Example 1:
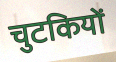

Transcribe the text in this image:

चुटकियों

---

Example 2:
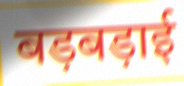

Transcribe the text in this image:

बड़बड़ाई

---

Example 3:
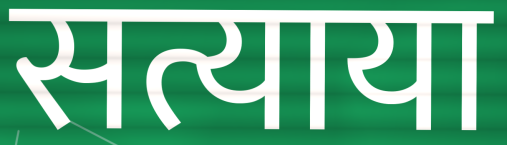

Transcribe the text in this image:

सत्याया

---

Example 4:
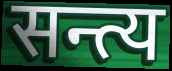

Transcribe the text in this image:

सन्त्य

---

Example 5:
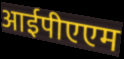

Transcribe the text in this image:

आईपीएएम